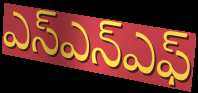
ఎస్ఎన్ఎఫ్